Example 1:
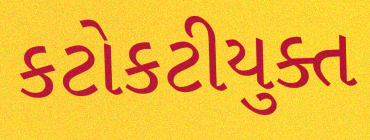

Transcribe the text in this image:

કટોકટીયુક્ત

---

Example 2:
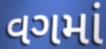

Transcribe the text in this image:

વગમાં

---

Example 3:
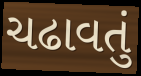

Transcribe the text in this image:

ચઢાવતું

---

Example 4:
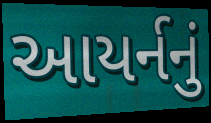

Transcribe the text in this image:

આયર્નનું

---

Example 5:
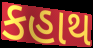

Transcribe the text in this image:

કહાથ